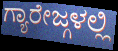
ಗ್ಯಾರೇಜ್ಗಳಲ್ಲಿ